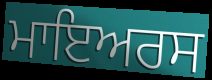
ਮਾਇਅਰਸ